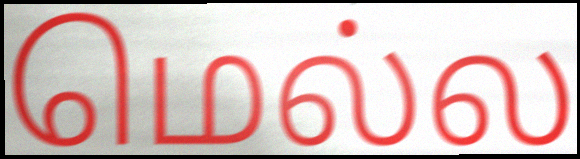
மெல்ல